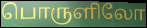
பொருளிலோ